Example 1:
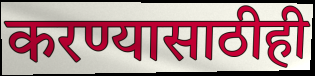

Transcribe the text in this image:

करण्यासाठीही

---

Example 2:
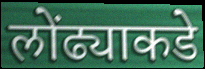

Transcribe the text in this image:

लोंढ्याकडे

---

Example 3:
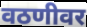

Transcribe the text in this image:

वठणीवर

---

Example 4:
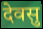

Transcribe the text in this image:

देवसु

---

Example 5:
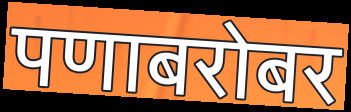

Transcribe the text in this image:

पणाबरोबर